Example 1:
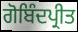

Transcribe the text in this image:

ਗੋਬਿੰਦਪ੍ਰੀਤ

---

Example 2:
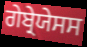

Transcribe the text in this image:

ਗੇਬ੍ਰੇਯੇਸਸ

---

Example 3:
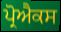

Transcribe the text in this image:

ਪ੍ਰੋਐਕਸ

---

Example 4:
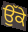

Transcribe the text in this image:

ਉੱਕੇ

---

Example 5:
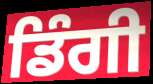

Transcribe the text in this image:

ਡਿੰਗੀ